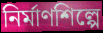
নির্মাণশিল্পে